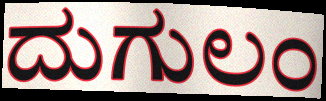
ದುಗುಲಂ